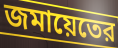
জমায়েতের